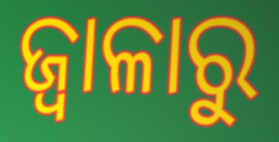
ଜ୍ଵାଳାରୁ